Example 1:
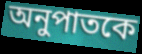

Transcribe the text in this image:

অনুপাতকে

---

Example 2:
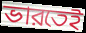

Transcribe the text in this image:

ভারতেই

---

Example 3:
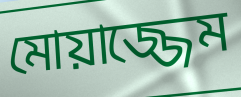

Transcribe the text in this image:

মোয়াজ্জেম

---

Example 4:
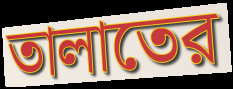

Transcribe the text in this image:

তালাতের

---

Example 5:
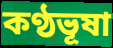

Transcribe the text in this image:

কণ্ঠভূষা